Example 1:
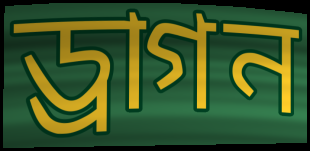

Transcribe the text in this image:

ড্রাগন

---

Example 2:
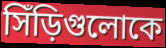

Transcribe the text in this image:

সিঁড়িগুলোকে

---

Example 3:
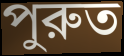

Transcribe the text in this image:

পুরুত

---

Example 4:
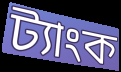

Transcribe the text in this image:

ট্যাংক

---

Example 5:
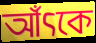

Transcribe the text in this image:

আঁৎকে